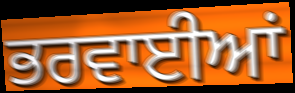
ਭਰਵਾਈਆਂ